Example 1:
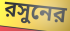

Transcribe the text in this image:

রসুনের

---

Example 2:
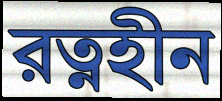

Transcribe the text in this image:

রত্নহীন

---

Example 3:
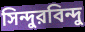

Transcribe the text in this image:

সিন্দুরবিন্দু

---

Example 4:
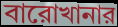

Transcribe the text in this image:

বারোখানার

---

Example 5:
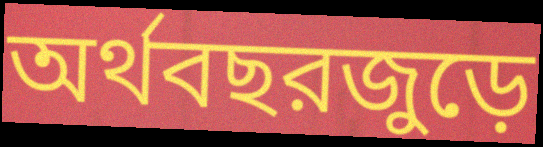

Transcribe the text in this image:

অর্থবছরজুড়ে